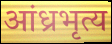
आंध्रभृत्य